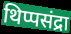
थिप्पसंद्रा